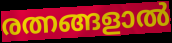
രത്നങ്ങളാൽ